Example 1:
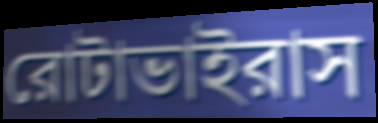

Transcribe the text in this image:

রোটাভাইরাস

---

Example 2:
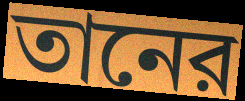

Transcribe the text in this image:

তানের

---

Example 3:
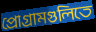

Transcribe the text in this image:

প্রোগ্রামগুলিতে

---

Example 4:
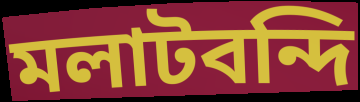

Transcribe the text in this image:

মলাটবন্দি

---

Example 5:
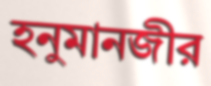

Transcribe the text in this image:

হনুমানজীর